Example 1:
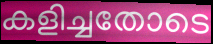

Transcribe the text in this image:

കളിച്ചതോടെ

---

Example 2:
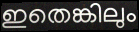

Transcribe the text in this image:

ഇതെങ്കിലും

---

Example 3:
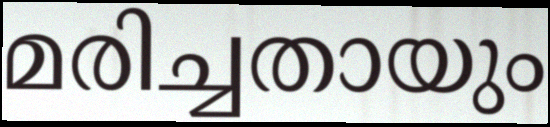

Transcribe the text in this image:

മരിച്ചതായും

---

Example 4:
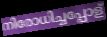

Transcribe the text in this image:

നിരോധിച്ചപ്പോള്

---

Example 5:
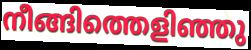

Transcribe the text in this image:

നീങ്ങിത്തെളിഞ്ഞു